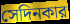
সেদিনকার